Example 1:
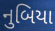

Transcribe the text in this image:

નુબિયા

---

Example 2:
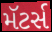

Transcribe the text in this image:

મૅટર્સ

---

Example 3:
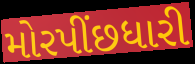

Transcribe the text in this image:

મોરપીંછધારી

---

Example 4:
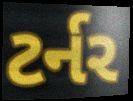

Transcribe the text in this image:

ટર્નર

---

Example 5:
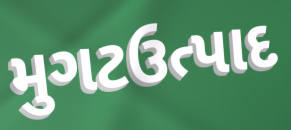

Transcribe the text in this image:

મુગટઉત્પાદ